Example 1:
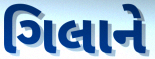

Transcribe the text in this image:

ગિલાને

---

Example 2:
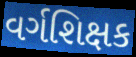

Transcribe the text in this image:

વર્ગશિક્ષક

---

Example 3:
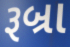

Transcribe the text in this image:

રૂબ્રા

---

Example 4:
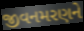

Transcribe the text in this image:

જીવનમરણને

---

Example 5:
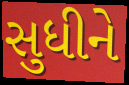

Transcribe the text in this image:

સુધીને